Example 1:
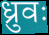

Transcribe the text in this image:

ध्रुवः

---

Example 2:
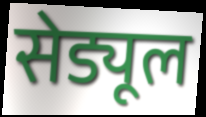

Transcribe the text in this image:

सेड्यूल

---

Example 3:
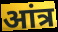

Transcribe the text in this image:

आंत्र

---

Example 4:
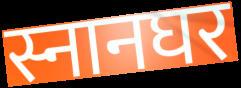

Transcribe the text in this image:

स्नानघर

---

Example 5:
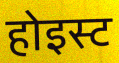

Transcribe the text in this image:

होइस्ट